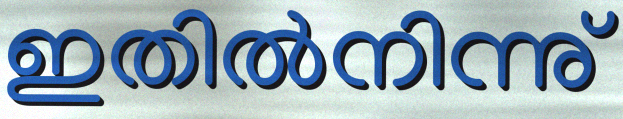
ഇതിൽനിന്നു്